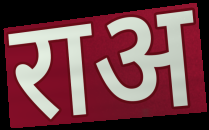
राअ